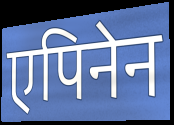
एपिनेन